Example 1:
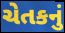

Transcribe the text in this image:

ચેતકનું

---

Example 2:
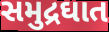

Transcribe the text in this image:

સમુદ્રઘાત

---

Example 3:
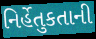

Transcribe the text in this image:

નિર્હેતુકતાની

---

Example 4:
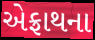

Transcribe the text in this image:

એફ્રાથના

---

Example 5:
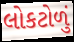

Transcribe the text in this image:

લોકટોળું